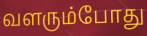
வளரும்போது